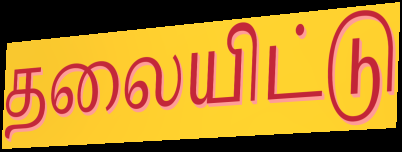
தலையிட்டு